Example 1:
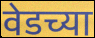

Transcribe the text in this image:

वेडच्या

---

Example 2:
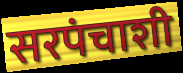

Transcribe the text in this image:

सरपंचाशी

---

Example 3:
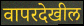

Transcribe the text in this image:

वापरदेखील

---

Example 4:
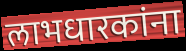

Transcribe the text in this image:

लाभधारकांना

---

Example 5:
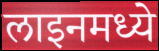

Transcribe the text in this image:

लाइनमध्ये